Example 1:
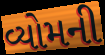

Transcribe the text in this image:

વ્યોમની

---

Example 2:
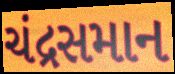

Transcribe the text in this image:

ચંદ્રસમાન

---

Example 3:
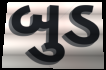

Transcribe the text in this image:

બુડ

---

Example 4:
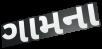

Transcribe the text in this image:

ગામના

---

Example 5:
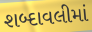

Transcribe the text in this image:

શબ્દાવલીમાં